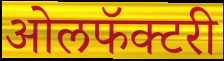
ओलफॅक्टरी